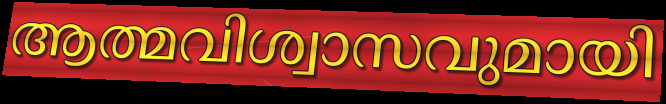
ആത്മവിശ്വാസവുമായി